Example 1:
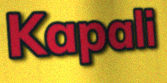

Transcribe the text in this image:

Kapali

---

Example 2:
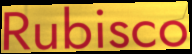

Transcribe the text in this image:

Rubisco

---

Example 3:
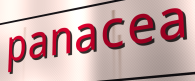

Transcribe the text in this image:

panacea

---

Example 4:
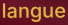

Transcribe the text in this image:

langue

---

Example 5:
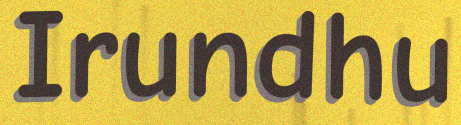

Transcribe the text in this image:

Irundhu